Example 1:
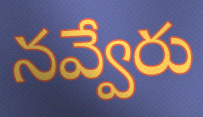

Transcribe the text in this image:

నవ్వేరు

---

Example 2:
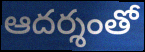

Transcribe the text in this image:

ఆదర్శంతో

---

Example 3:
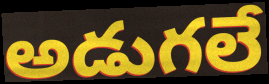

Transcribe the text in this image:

అడుగలే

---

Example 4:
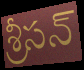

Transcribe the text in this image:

శ్రీసన్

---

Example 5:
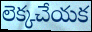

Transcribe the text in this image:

లెక్కచేయక